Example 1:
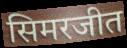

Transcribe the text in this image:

सिमरजीत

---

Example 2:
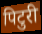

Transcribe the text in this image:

पिटुरी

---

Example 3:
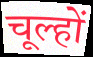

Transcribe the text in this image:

चूल्हों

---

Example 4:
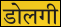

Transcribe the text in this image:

डोलगी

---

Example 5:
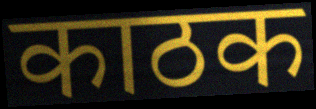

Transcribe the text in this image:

काठक